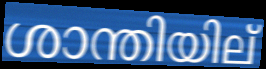
ശാന്തിയില്